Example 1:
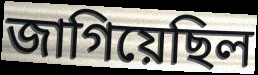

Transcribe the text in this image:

জাগিয়েছিল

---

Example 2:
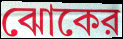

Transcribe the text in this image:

ঝোকের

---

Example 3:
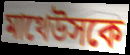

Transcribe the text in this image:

মাথেউসকে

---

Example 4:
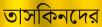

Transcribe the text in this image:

তাসকিনদের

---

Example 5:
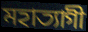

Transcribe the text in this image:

মহাত্যাগী